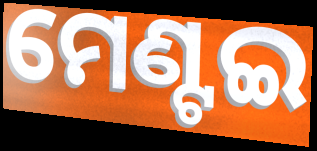
ମେଣ୍ଟଇ